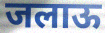
जलाऊ